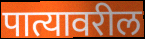
पात्यावरील